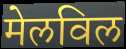
मेलविल